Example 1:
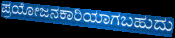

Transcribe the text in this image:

ಪ್ರಯೋಜನಕಾರಿಯಾಗಬಹುದು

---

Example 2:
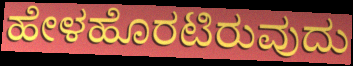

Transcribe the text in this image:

ಹೇಳಹೊರಟಿರುವುದು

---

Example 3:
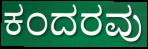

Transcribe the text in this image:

ಕಂದರವು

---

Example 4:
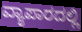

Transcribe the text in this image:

ವ್ಯಾಪಾರದಲ್ಲಿ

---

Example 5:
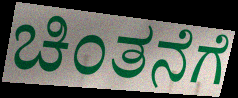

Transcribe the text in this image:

ಚಿಂತನೆಗೆ